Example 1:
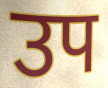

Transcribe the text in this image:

उप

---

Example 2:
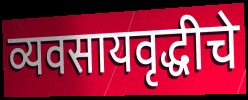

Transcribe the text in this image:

व्यवसायवृद्धीचे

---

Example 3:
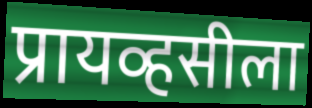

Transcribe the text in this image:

प्रायव्हसीला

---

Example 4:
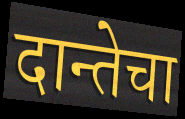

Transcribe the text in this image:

दान्तेचा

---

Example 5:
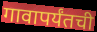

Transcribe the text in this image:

गावापर्यंतची